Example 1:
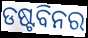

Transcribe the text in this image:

ଡଷ୍ଟବିନର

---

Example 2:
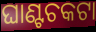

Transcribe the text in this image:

ଘାଣ୍ଟଚକଟା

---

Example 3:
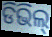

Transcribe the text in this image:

ଡିଭିଲ୍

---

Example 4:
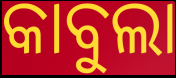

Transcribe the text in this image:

କାବୁଲା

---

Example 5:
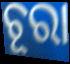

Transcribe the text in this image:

ଚୂରା